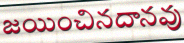
జయించినదానవు